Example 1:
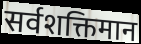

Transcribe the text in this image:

सर्वशक्तिमान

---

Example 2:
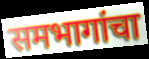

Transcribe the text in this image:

समभागांचा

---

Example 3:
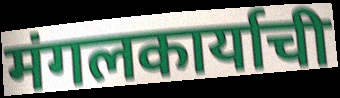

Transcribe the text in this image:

मंगलकार्याची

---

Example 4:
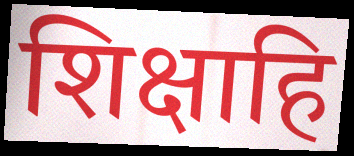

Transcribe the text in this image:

शिक्षाहि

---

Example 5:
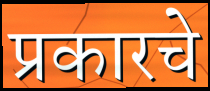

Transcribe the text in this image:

प्रकारचे